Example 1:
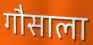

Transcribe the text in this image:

गौसाला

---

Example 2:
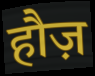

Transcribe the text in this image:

हौज़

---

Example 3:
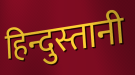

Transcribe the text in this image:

हिन्‍दुस्‍तानी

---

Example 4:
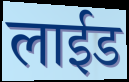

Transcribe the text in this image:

लाईड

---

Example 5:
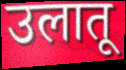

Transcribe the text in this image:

उलातू